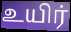
உயிர்